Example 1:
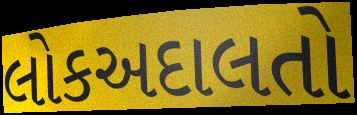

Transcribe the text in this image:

લોકઅદાલતો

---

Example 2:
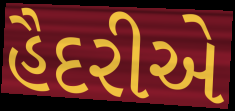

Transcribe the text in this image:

હૈદરીએ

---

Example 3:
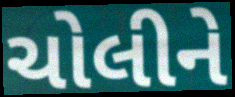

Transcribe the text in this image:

ચોલીને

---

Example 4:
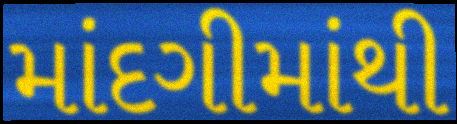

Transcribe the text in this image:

માંદગીમાંથી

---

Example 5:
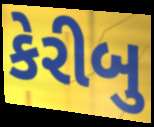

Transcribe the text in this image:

કેરીબુ